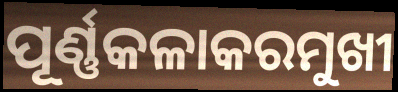
ପୂର୍ଣ୍ଣକଳାକରମୁଖୀ